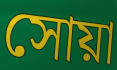
সোয়া